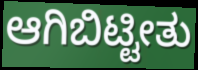
ಆಗಿಬಿಟ್ಟೀತು